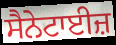
ਸੈਨੇਟਾਈਜ਼